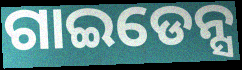
ଗାଇଡେନ୍ସ